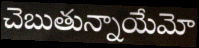
చెబుతున్నాయేమో